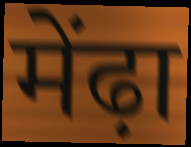
मेंढ़ा